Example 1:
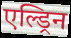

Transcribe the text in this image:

एल्ड्रिन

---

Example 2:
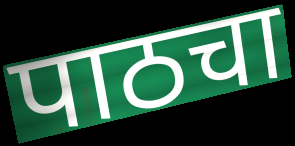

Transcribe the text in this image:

पाठचा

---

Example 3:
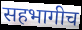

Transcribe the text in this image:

सहभागीच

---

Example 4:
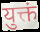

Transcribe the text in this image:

युक्तं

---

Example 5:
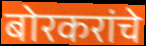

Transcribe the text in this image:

बोरकरांचे